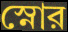
স্নোর